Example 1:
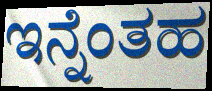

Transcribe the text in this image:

ಇನ್ನೆಂತಹ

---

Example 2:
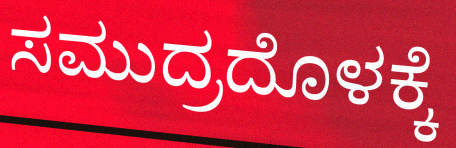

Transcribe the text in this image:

ಸಮುದ್ರದೊಳಕ್ಕೆ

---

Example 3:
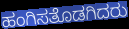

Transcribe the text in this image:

ಹಂಗಿಸತೊಡಗಿದರು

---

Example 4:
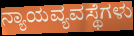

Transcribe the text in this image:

ನ್ಯಾಯವ್ಯವಸ್ಥೆಗಳು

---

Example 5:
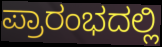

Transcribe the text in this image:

ಪ್ರಾರಂಭದಲ್ಲಿ